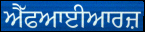
ਐੱਫਆਈਆਰਜ਼